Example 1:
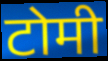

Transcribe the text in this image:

टोमी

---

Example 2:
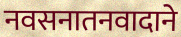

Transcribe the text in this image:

नवसनातनवादाने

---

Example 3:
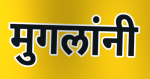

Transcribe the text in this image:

मुगलांनी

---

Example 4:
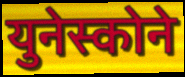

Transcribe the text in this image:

युनेस्कोने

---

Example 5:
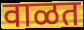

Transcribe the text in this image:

वाळत